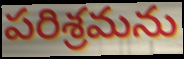
పరిశ్రమను